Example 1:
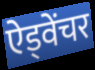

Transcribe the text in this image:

ऐड्वेंचर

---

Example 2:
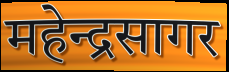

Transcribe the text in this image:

महेन्द्रसागर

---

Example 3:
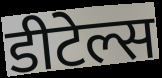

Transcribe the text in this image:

डीटेल्स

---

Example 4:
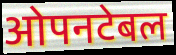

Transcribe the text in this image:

ओपनटेबल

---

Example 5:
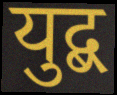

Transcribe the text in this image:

युद्ब